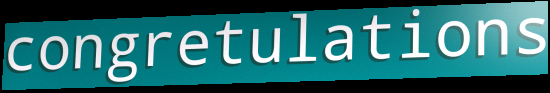
congretulations